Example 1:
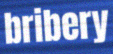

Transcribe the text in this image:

bribery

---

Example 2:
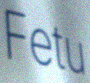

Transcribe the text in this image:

Fetu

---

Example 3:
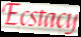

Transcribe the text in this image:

Ecstacy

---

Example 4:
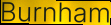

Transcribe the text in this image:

Burnham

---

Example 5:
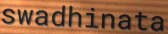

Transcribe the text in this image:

swadhinata